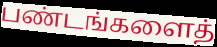
பண்டங்களைத்